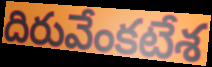
దిరువేంకటేశ